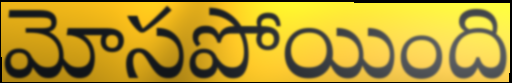
మోసపోయింది